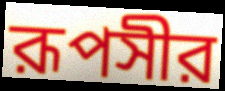
রূপসীর